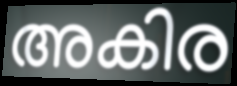
അകിര